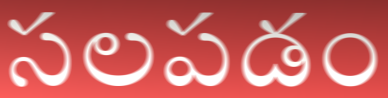
సలపడం